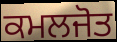
ਕਮਲਜੋਤ